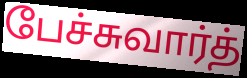
பேச்சுவார்த்